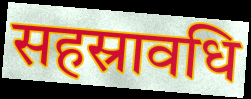
सहस्रावधि